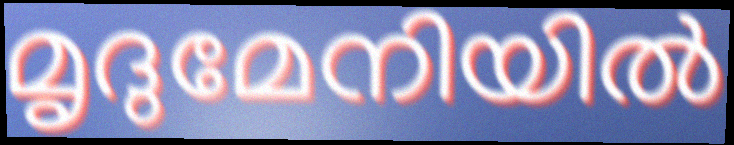
മൃദുമേനിയിൽ